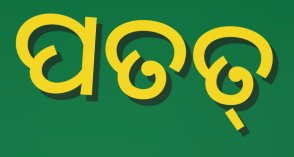
ପତତ୍